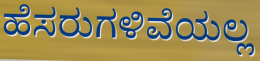
ಹೆಸರುಗಳಿವೆಯಲ್ಲ